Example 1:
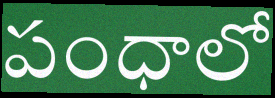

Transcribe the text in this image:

పంధాలో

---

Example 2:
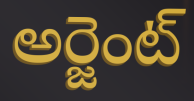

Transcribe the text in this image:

అర్జెంట్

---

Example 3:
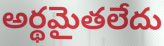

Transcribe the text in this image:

అర్థమైతలేదు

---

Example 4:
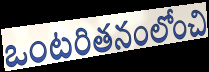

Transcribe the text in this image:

ఒంటరితనంలోంచి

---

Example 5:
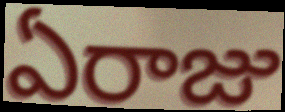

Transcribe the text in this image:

ఏరాజు